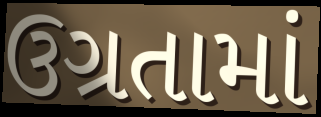
ઉગ્રતામાં